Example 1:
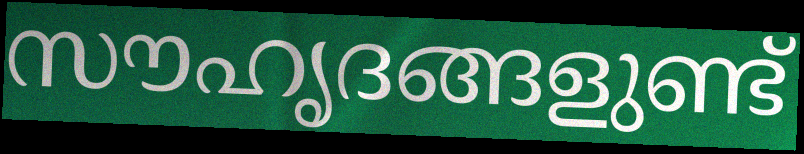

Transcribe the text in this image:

സൗഹൃദങ്ങളുണ്ട്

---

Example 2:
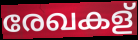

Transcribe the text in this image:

രേഖകള്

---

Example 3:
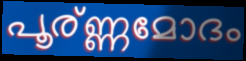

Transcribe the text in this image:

പൂര്ണ്ണമോദം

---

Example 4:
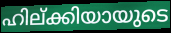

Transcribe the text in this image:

ഹില്ക്കിയായുടെ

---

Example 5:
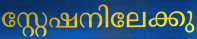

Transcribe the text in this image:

സ്റ്റേഷനിലേക്കു